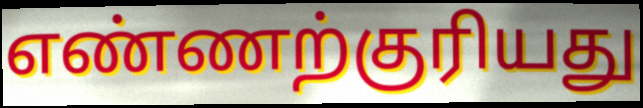
எண்ணற்குரியது